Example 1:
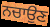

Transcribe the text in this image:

ਨਚਾਉਣ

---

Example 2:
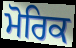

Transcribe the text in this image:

ਮੋਰਿਕ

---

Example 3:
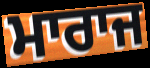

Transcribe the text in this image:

ਮਾਰਾਜ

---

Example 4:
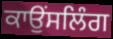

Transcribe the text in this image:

ਕਾਉੰਸਲਿੰਗ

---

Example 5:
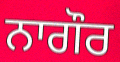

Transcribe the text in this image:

ਨਾਗੌਰ